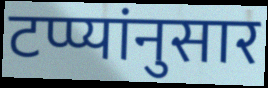
टप्प्यांनुसार